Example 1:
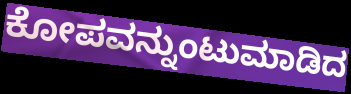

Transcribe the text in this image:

ಕೋಪವನ್ನುಂಟುಮಾಡಿದ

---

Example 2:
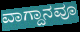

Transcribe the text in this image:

ವಾಗ್ದಾನವೂ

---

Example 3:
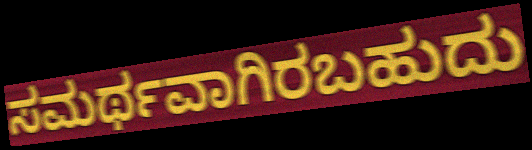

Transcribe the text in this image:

ಸಮರ್ಥವಾಗಿರಬಹುದು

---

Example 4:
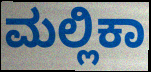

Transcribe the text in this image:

ಮಲ್ಲಿಕಾ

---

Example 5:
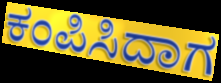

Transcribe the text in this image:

ಕಂಪಿಸಿದಾಗ